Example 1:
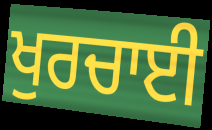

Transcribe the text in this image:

ਖੁਰਚਾਈ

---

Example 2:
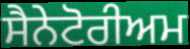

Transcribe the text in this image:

ਸੈਨੇਟੋਰੀਅਮ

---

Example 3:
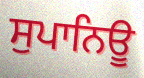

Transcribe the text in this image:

ਸੁਪਾਨਿਊ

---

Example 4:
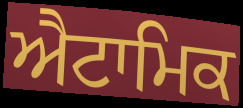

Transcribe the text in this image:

ਐਟਾਮਿਕ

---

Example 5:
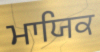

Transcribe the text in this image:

ਮਾਯਿਕ